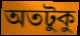
অতটুকু